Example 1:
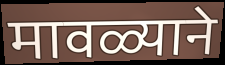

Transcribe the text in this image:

मावळ्याने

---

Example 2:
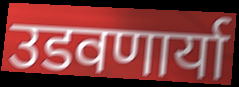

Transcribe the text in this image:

उडवणार्या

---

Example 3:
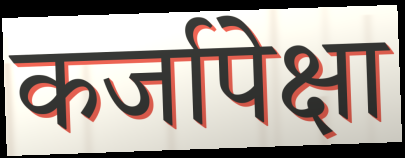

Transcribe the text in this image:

कर्जापेक्षा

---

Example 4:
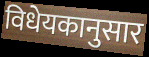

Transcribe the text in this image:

विधेयकानुसार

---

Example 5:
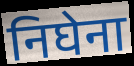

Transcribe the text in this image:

निघेना